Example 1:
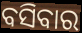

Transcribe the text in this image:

ବସିବାର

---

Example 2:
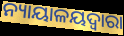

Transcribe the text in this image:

ନ୍ୟାୟାଳୟଦ୍ୱାରା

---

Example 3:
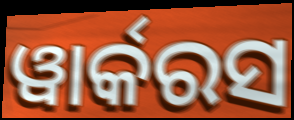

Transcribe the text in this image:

ୱାର୍କରସ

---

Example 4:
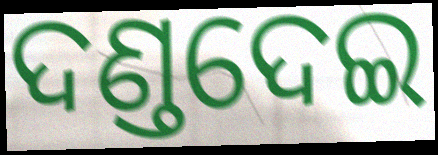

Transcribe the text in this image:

ଦଣ୍ଡଦେଇ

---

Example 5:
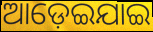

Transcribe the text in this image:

ଆଡ଼େଇଯାଇ